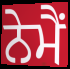
ਨੇਮੈਂ